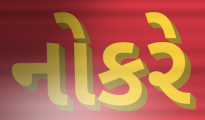
નોકરે